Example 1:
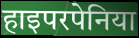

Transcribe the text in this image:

हाइपरपेनिया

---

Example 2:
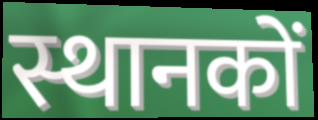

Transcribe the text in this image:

स्थानकों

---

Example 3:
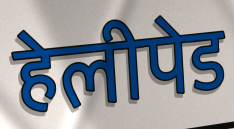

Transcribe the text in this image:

हेलीपेड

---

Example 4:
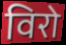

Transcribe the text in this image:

विरो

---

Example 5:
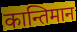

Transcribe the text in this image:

कान्तिमान